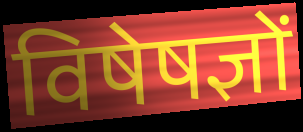
विषेषज्ञों